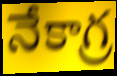
నేకాగ్ర